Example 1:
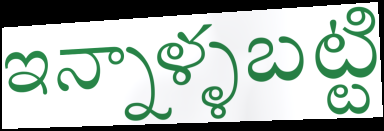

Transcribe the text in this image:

ఇన్నాళ్ళబట్టి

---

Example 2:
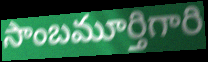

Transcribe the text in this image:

సాంబమూర్తిగారి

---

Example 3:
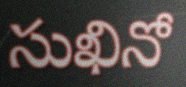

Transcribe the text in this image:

సుఖినో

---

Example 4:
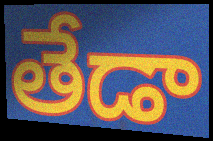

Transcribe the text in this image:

తేడా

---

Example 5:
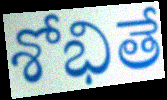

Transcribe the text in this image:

శోభితే